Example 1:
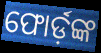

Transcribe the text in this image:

ଫୋର୍ଡ଼ଙ୍କ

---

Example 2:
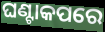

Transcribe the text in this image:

ଘଣ୍ଟାକପରେ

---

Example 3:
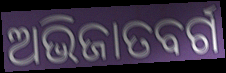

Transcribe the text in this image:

ଅଭିଜାତବର୍ଗ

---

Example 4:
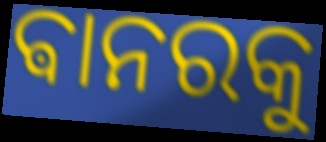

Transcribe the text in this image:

ଵାନରକୁ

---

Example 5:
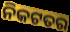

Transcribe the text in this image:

ନିକଟତର